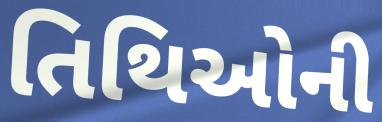
તિથિઓની